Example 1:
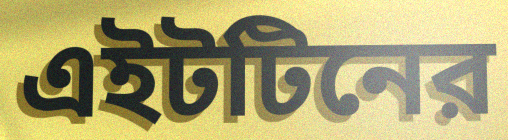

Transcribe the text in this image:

এইটটিনের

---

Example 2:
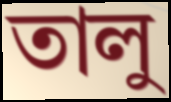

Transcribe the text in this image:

তালু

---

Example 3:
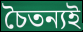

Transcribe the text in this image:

চৈতন্যই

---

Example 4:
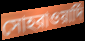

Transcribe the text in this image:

সোহরাওয়ার্দি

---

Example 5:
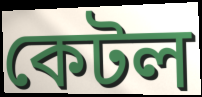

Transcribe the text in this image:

কেটল